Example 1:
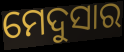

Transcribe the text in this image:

ମେଦୁସାର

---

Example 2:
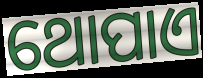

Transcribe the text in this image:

ଥୋପାଏ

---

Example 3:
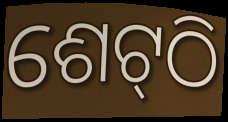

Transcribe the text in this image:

ଶେଟ୍‍ଠି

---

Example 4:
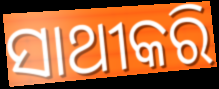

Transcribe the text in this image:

ସାଥୀକରି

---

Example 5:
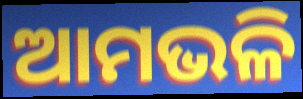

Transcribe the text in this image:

ଆମଭଳି